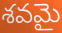
శవమై